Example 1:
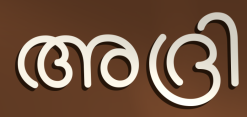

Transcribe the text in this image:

അദ്രി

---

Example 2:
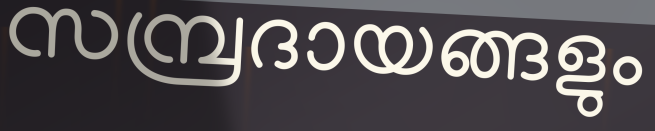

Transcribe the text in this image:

സമ്പ്രദായങ്ങളും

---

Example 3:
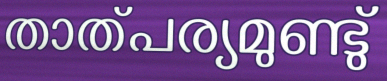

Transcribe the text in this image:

താത്പര്യമുണ്ടു്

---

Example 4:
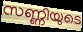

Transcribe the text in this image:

സണ്ണിയുടെ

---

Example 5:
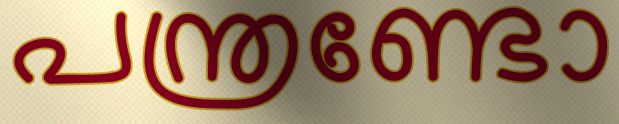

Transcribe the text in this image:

പന്ത്രണ്ടോ